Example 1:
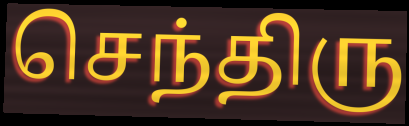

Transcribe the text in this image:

செந்திரு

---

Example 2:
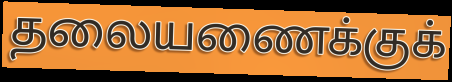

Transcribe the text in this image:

தலையணைக்குக்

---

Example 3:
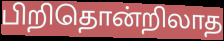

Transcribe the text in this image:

பிறிதொன்றிலாத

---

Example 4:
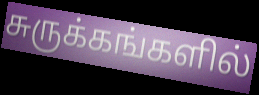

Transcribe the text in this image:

சுருக்கங்களில்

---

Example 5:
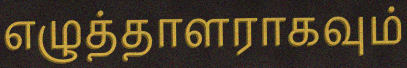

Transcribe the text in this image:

எழுத்தாளராகவும்